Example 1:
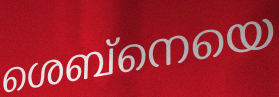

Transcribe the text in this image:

ശെബ്നെയെ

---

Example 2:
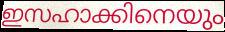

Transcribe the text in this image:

ഇസഹാക്കിനെയും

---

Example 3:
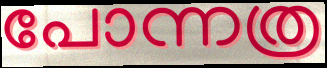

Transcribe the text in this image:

പോന്നത്ര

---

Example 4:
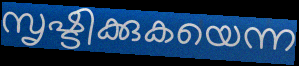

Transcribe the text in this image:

സൃഷ്ടിക്കുകയെന്ന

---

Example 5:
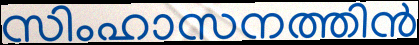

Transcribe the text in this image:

സിംഹാസനത്തിൻ